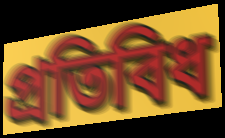
প্ৰতিবিধ